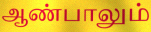
ஆண்பாலும்